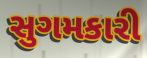
સુગમકારી